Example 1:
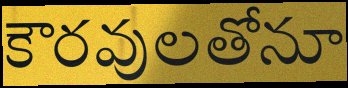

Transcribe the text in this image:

కౌరవులతోనూ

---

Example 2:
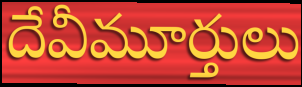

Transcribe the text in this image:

దేవీమూర్తులు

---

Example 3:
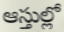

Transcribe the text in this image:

ఆస్తుల్లో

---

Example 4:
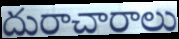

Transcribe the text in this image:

దురాచారాలు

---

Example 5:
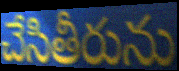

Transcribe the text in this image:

చేసితీరును